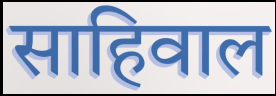
साहिवाल